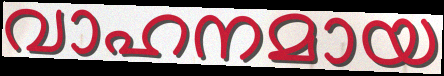
വാഹനമായ